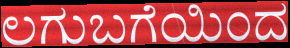
ಲಗುಬಗೆಯಿಂದ